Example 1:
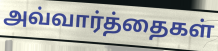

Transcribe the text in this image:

அவ்வார்த்தைகள்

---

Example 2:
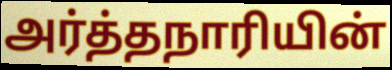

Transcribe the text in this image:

அர்த்தநாரியின்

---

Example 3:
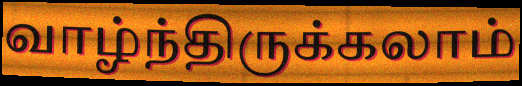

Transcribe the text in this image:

வாழ்ந்திருக்கலாம்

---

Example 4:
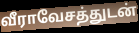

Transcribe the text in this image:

வீராவேசத்துடன்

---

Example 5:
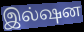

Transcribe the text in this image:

இல்ஷன